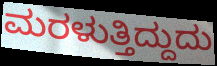
ಮರಳುತ್ತಿದ್ದುದು